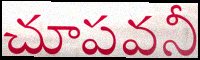
చూపవనీ